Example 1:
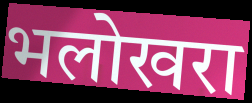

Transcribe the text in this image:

भलोखरा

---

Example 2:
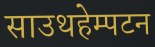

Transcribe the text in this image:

साउथहेम्पटन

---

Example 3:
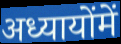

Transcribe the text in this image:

अध्यायोंमें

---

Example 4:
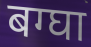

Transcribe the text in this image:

बग्घा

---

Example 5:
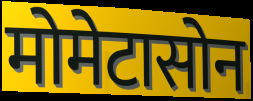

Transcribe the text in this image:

मोमेटासोन